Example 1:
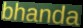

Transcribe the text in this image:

bhanda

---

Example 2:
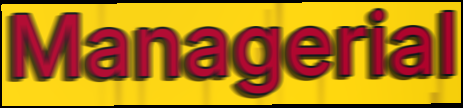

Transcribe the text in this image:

Managerial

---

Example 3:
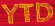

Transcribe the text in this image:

YTD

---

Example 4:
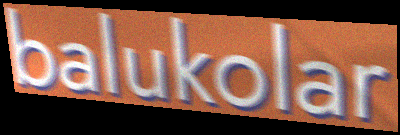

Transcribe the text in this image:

balukolar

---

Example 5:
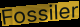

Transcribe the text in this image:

Fossiler